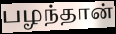
பழந்தான்